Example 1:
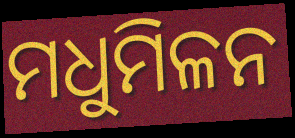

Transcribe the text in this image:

ମଧୁମିଳନ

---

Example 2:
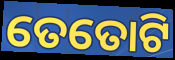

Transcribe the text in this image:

ତେତୋଟି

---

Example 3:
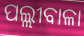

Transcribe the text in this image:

ପଲ୍ଲୀବାଳା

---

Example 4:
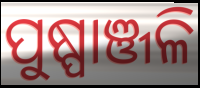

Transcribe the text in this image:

ପୁଷ୍ପାଞ୍ଜଳି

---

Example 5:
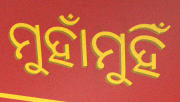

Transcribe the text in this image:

ମୁହାଁମୁହିଁ